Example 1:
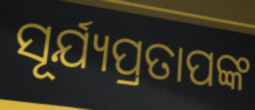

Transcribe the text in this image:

ସୂର୍ଯ୍ୟପ୍ରତାପଙ୍କ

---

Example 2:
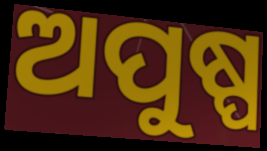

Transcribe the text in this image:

ଅପୁଷ୍ପ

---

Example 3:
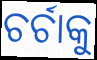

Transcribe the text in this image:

ଚର୍ଚାକୁ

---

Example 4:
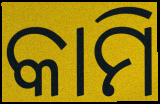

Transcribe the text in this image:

କାମି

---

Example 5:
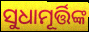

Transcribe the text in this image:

ସୁଧାମୂର୍ତ୍ତିଙ୍କ